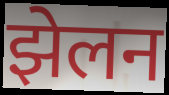
झेलन